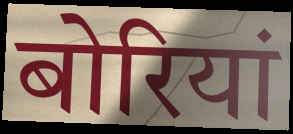
बोरियां